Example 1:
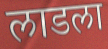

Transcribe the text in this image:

लाडला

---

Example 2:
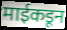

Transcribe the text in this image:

माईकडून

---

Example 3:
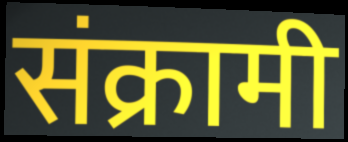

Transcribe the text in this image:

संक्रामी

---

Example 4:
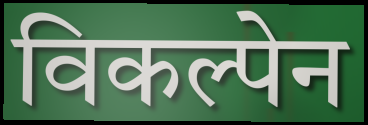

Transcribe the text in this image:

विकल्पेन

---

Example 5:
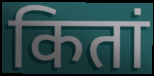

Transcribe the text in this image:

कितां